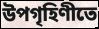
উপগৃহিণীতে